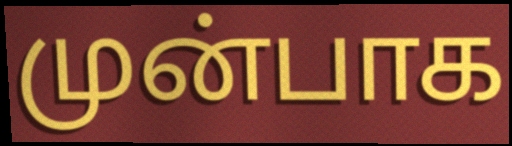
முன்பாக